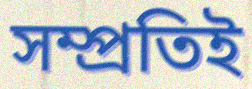
সম্প্রতিই